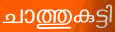
ചാത്തുകുട്ടി